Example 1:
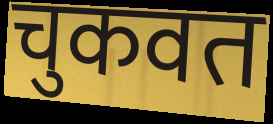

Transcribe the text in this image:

चुकवत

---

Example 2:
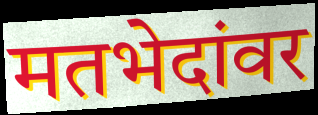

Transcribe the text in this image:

मतभेदांवर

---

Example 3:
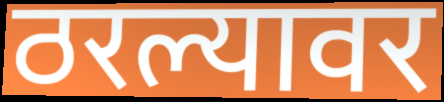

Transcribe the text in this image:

ठरल्यावर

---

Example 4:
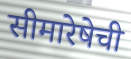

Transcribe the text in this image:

सीमारेषेची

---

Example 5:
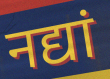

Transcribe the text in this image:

नद्यां